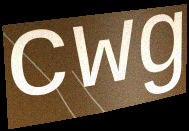
cwg